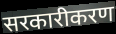
सरकारीकरण